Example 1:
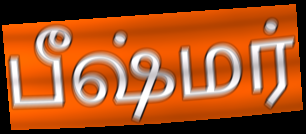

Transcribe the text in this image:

பீஷ்மர்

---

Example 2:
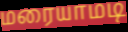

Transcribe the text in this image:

மரையாமடி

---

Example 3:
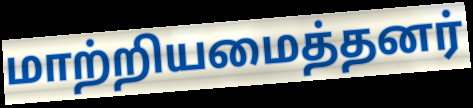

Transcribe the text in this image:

மாற்றியமைத்தனர்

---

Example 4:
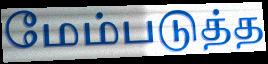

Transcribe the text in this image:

மேம்படுத்த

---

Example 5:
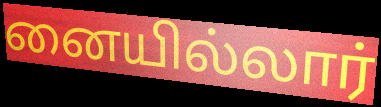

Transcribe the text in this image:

னையில்லார்